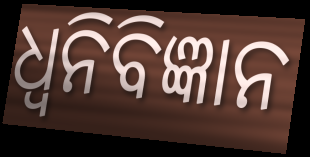
ଧ୍ୱନିବିଜ୍ଞାନ